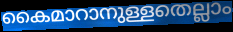
കൈമാറാനുള്ളതെല്ലാം